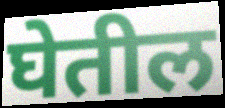
घेतील